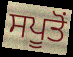
ਸਪੂਤੋਂ